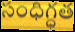
సంధిగ్ధత